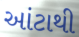
આંટાથી